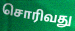
சொரிவது